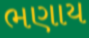
ભણાય